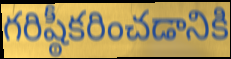
గరిష్ఠీకరించడానికి